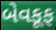
બેવકૂફ